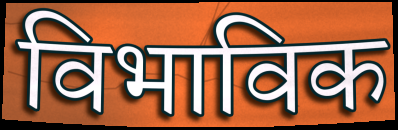
विभाविक